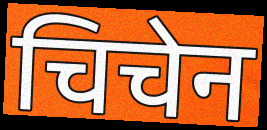
चिचेन